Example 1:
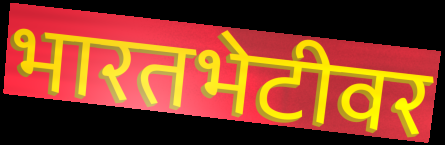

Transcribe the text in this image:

भारतभेटीवर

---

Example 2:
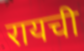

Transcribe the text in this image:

रायची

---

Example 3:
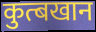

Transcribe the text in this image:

कुत्बखान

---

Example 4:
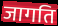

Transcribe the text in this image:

जागति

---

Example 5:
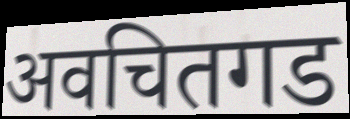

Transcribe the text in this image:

अवचितगड